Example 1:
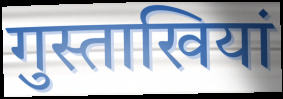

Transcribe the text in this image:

गुस्ताखियां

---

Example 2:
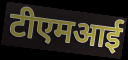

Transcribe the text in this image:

टीएमआई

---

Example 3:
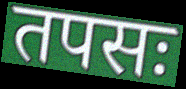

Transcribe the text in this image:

तपसः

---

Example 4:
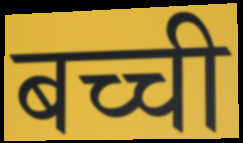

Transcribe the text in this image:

बच्ची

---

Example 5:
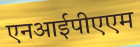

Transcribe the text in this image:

एनआईपीएएम